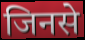
जिनसे